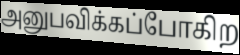
அனுபவிக்கப்போகிற